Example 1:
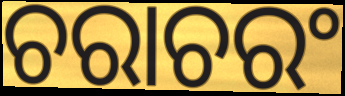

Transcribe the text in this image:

ଚରାଚରଂ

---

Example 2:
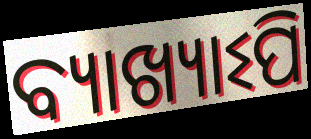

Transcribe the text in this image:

ବ୍ୟାଖ୍ୟାଽପି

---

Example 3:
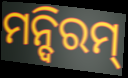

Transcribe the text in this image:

ମନ୍ଦିରମ୍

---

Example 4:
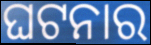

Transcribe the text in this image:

ଘଟନାର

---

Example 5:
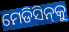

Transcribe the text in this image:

ମେଡିସିନ୍‌କୁ